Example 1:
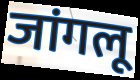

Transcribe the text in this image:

जांगलू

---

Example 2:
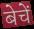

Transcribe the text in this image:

बेचें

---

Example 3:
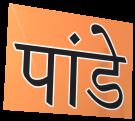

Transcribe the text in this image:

पांडे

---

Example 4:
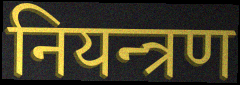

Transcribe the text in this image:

नियन्त्रण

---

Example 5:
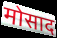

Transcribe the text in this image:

मोसाद